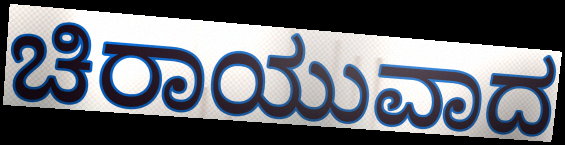
ಚಿರಾಯುವಾದ